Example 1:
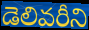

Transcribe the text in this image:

డెలివరీని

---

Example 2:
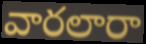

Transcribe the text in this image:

వారలారా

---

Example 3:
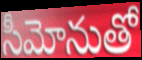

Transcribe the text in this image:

సీమోనుతో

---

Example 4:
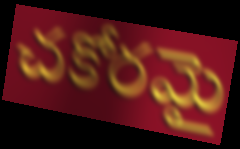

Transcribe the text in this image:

చకోరమై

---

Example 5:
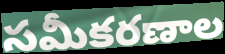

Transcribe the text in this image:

సమీకరణాల